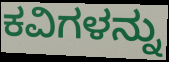
ಕವಿಗಳನ್ನು